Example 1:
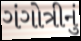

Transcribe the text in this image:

ગંગોત્રીનું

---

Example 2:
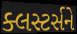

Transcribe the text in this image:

ક્લસ્ટર્સને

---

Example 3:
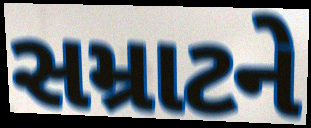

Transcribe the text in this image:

સમ્રાટને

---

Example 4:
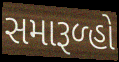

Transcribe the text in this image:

સમારૂળ્હો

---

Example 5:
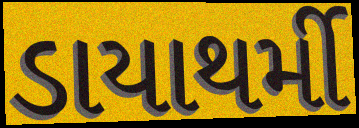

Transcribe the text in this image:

ડાયાથર્મી